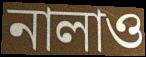
নালাও